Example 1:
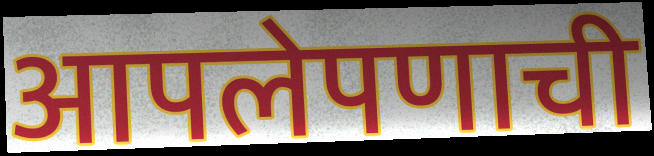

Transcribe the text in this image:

आपलेपणाची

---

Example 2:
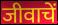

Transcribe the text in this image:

जीवाचें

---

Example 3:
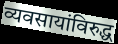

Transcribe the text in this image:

व्यवसायांविरुद्ध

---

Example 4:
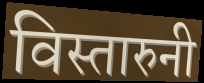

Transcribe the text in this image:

विस्तारुनी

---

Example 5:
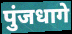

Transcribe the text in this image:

पुंजधागे